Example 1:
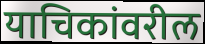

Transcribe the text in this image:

याचिकांवरील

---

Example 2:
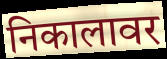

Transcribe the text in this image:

निकालावर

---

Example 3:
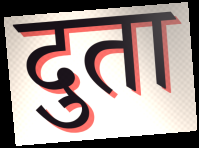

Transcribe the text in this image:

दुता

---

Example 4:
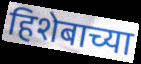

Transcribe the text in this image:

हिशेबाच्या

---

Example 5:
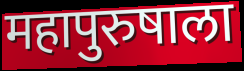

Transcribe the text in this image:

महापुरुषाला